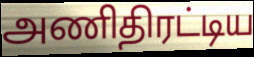
அணிதிரட்டிய